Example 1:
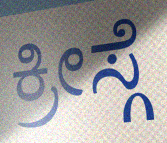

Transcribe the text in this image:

ಕ್ರೀಸ್ಗೆ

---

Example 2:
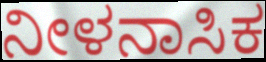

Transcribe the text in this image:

ನೀಳನಾಸಿಕ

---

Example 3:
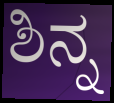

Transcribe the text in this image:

ಶಿನ್ನ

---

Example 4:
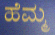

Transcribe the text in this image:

ಹೆಮ್ಮ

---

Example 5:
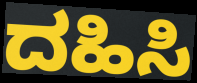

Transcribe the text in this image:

ದಹಿಸಿ